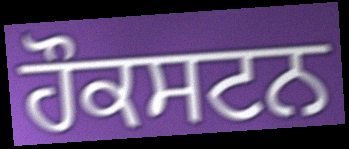
ਹੌਕਸਟਨ